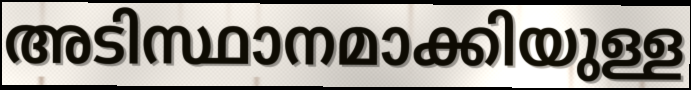
അടിസ്ഥാനമാക്കിയുള്ള